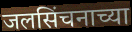
जलसिंचनाच्या